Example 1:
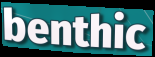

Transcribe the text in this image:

benthic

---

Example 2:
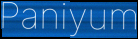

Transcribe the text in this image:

Paniyum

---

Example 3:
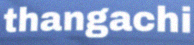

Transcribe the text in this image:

thangachi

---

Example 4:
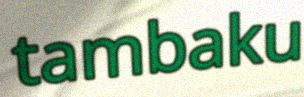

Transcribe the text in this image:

tambaku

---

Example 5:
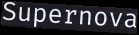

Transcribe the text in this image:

Supernova